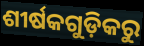
ଶୀର୍ଷକଗୁଡ଼ିକରୁ